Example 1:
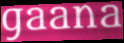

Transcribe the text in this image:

gaana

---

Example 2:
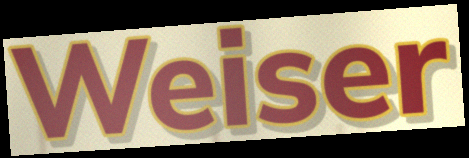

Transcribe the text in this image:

Weiser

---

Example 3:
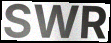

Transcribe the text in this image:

SWR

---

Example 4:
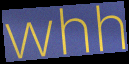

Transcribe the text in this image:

whh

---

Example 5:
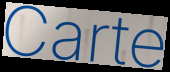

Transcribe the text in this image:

Carte